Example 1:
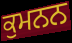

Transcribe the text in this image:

ਕੁਮਨਨ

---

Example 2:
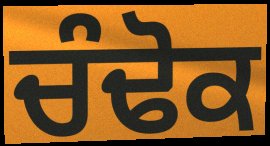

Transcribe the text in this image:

ਚੰਢੋਕ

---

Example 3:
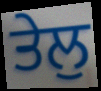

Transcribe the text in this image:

ਤੇਲੁ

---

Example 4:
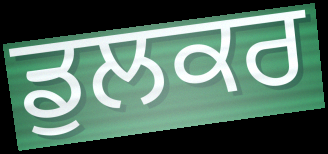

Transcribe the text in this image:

ਡੁਲਕਰ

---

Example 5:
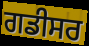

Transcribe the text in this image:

ਗਡੀਸਰ